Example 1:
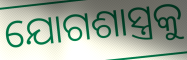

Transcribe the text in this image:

ଯୋଗଶାସ୍ତ୍ରକୁ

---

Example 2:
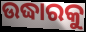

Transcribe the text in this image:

ଉଦ୍ଧାରକୁ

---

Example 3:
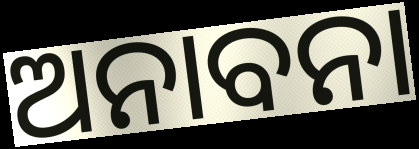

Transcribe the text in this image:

ଅନାବନା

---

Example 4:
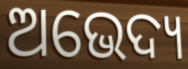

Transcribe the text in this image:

ଅଭେଦ୍ୟ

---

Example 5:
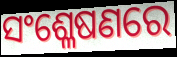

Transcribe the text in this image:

ସଂଶ୍ଳେଷଣରେ